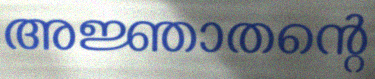
അജ്ഞാതന്റെ